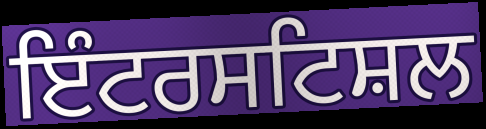
ਇੰਟਰਸਟਿਸ਼ਲ